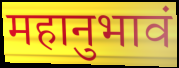
महानुभावं